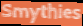
Smythies